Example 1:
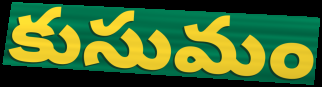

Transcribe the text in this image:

కుసుమం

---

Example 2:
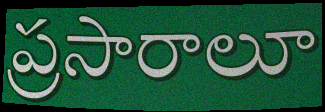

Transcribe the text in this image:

ప్రసారాలూ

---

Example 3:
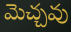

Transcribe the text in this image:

మెచ్చవు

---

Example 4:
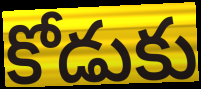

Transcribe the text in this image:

కోడుకు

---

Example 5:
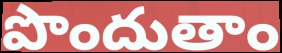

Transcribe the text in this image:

పొందుతాం